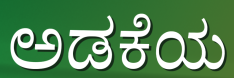
ಅಡಕೆಯ